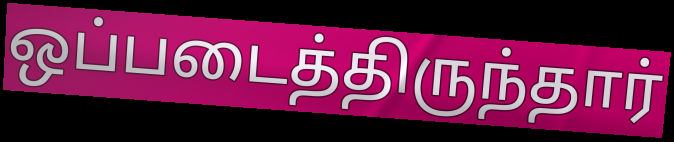
ஒப்படைத்திருந்தார்